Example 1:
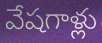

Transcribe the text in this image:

వేషగాళ్లు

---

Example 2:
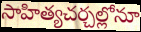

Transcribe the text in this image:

సాహిత్యచర్చల్లోనూ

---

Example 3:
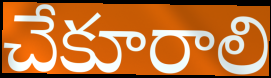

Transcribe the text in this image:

చేకూరాలి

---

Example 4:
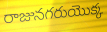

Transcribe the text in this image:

రాజునగరుయొక్క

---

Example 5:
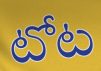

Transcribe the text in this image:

టోట